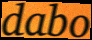
dabo